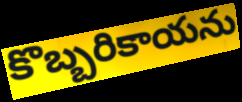
కొబ్బరికాయను